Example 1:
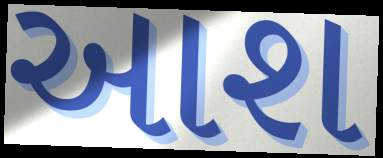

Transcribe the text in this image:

આશ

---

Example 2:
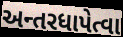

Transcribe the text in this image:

અન્તરધાપેત્વા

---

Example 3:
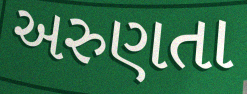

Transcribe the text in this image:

અરુણતા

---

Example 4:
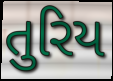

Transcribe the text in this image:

તુરિય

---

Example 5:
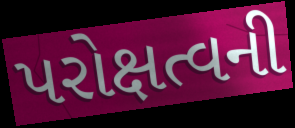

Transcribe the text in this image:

પરોક્ષત્વની